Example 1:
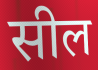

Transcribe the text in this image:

सील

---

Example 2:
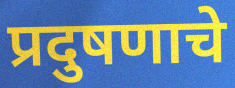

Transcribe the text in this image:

प्रदुषणाचे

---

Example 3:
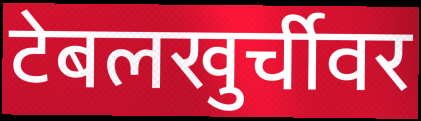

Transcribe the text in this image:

टेबलखुर्चीवर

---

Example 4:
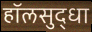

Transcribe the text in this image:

हॉलसुद्धा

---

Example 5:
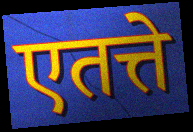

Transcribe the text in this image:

एतत्ते